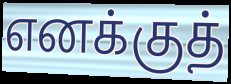
எனக்குத்